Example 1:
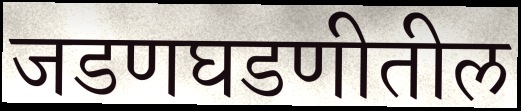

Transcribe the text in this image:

जडणघडणीतील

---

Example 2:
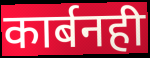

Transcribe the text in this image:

कार्बनही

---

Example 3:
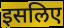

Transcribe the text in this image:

इसलिए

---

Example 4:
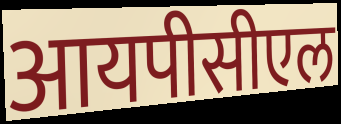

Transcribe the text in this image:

आयपीसीएल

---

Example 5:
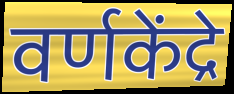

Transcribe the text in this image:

वर्णकेंद्रे